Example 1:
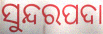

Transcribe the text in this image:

ସୁନ୍ଦରପଦା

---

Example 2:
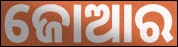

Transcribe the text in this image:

ଜୋଆର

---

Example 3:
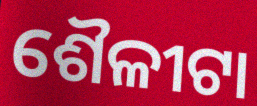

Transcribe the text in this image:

ଶୈଳୀଟା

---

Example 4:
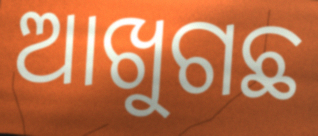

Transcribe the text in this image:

ଆଖୁଗଛ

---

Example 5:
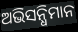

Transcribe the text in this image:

ଅଭିସନ୍ଧିମାନ